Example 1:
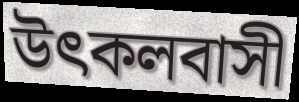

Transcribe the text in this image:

উৎকলবাসী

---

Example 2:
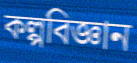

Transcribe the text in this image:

কল্পবিজ্ঞান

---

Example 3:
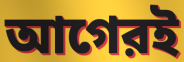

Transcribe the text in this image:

আগেরই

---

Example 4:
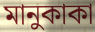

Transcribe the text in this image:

মানুকাকা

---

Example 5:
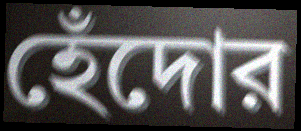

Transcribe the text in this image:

হেঁদোর